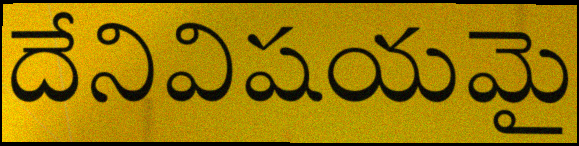
దేనివిషయమై